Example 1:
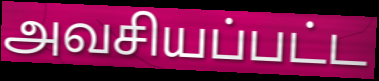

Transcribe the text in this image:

அவசியப்பட்ட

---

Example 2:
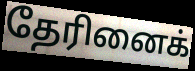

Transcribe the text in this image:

தேரினைக்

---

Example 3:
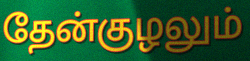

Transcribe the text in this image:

தேன்குழலும்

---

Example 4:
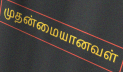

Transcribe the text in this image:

முதன்மையானவள்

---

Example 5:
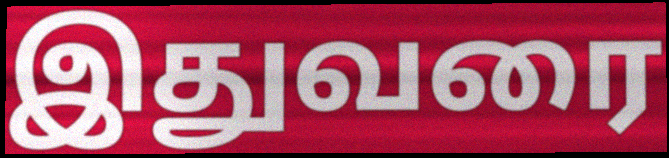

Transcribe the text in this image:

இதுவரை